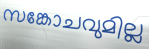
സങ്കോചവുമില്ല